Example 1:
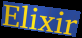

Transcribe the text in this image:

Elixir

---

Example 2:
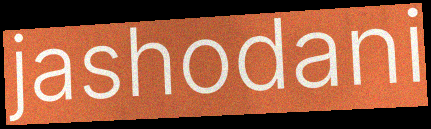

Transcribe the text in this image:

jashodani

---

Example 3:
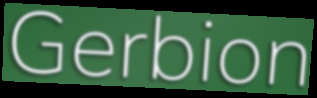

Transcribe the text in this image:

Gerbion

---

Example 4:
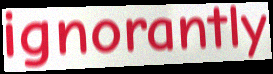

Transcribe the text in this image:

ignorantly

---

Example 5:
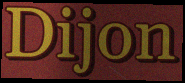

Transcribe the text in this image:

Dijon